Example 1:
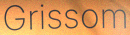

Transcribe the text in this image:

Grissom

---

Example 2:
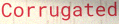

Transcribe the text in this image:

Corrugated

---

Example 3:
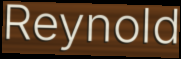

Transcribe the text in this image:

Reynold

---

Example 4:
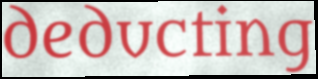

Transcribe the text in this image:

deducting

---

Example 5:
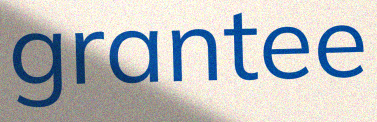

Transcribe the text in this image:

grantee